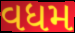
વધમ